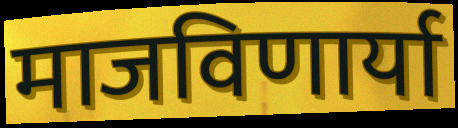
माजविणार्या